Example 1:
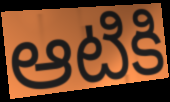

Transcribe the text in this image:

ఆటికి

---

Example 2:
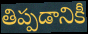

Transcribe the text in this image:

తిప్పడానికీ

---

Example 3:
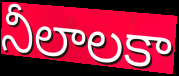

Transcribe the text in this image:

నీలాలకా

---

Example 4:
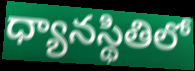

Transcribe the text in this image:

ధ్యానస్థితిలో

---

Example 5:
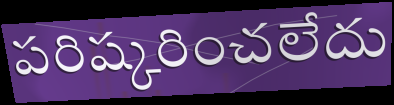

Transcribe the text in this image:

పరిష్కరించలేదు